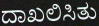
ದಾಖಲಿಸಿತು